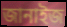
জানাইজ